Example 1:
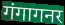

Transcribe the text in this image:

गंगागनर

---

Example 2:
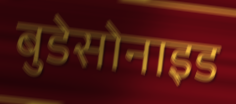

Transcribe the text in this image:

बुडेसोनाइड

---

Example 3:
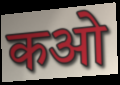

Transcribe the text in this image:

कओ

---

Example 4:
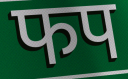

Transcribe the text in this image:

फप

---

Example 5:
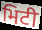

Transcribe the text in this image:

भिटी